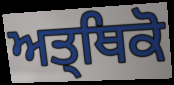
ਅਤ੍ਥਿਕੋ